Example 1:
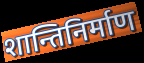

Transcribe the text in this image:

शान्तिनिर्माण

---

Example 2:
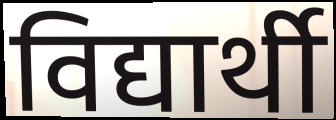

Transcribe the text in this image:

विद्यार्थी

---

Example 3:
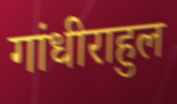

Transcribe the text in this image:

गांधीराहुल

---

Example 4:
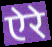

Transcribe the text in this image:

ऐरे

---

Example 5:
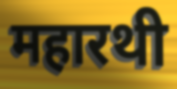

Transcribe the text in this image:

महारथी